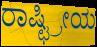
ರಾಷ್ಟ್ರೀಯ